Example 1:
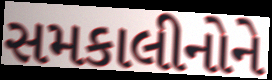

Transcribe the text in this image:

સમકાલીનોને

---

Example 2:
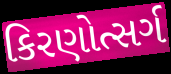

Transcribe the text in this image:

કિરણોત્સર્ગ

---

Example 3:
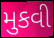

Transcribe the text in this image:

મુકવી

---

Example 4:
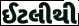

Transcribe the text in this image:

ઈટલીથી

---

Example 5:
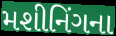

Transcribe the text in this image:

મશીનિંગના